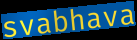
svabhava